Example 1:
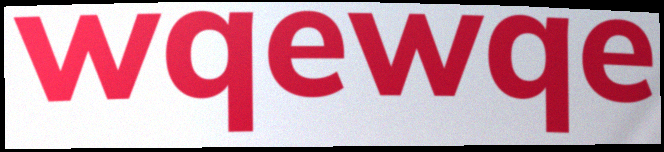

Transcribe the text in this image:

wqewqe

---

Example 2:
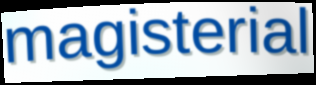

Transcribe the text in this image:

magisterial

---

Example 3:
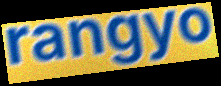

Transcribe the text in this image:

rangyo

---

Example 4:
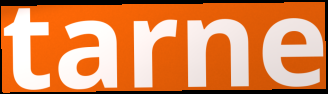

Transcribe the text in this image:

tarne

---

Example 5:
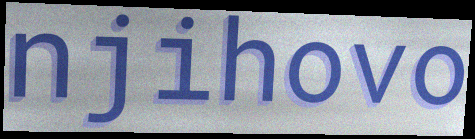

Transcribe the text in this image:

njihovo